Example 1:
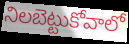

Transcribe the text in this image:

నిలబెట్టుకోవాలో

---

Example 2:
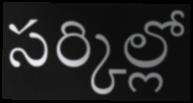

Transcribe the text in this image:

సర్కిల్లో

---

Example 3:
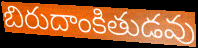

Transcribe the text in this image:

బిరుదాంకితుడవు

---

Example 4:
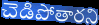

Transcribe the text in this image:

చెడిపోతారని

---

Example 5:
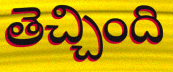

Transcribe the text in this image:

తెచ్చింది